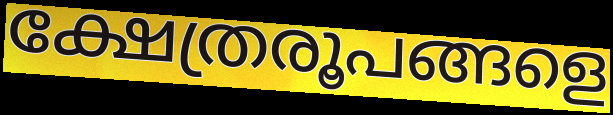
ക്ഷേത്രരൂപങ്ങളെ